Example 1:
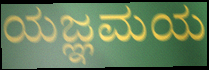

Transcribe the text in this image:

ಯಜ್ಞಮಯ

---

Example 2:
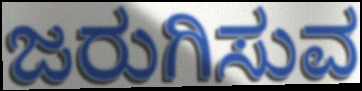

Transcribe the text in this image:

ಜರುಗಿಸುವ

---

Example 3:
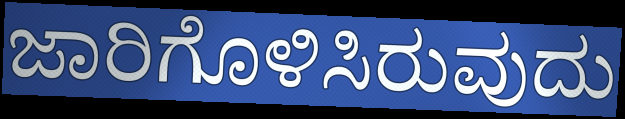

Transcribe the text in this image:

ಜಾರಿಗೊಳಿಸಿರುವುದು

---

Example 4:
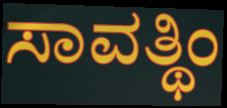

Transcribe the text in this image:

ಸಾವತ್ಥಿಂ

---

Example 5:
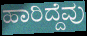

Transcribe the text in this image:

ಹಾರಿದ್ದೆವು